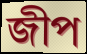
জীপ